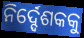
ନିର୍ଦ୍ଦେଶକକୁ